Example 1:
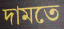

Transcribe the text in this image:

দামতে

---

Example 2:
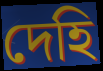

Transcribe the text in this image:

দেহি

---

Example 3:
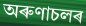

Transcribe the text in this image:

অৰুণাচলৰ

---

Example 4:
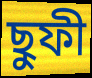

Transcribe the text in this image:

ছুফী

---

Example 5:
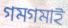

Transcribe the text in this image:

গমগমাই